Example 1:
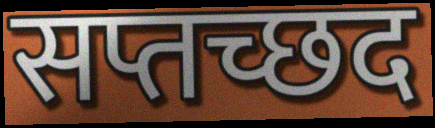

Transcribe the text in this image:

सप्तच्छद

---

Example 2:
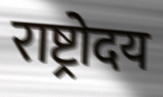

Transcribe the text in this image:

राष्ट्रोदय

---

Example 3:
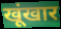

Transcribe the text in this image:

खूंखार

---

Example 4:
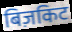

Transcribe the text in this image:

बिज़किट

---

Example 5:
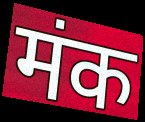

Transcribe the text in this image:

मंक